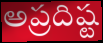
అప్రదిష్ట